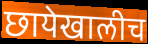
छायेखालीच